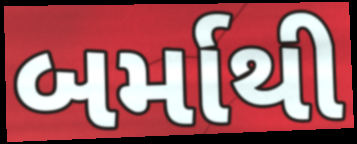
બર્માથી